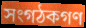
সংগঠকগণ